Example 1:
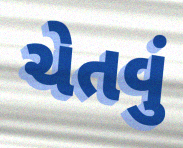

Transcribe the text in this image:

ચેતવું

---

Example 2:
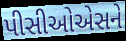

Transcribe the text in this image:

પીસીઓએસને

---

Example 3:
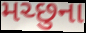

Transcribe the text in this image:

મચ્છુના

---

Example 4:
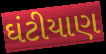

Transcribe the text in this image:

ઘંટીયાણ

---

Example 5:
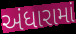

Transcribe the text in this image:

અંધારામાં